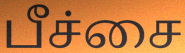
பீச்சை